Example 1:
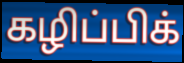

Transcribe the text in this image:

கழிப்பிக்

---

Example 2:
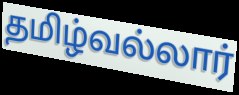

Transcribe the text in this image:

தமிழ்வல்லார்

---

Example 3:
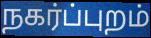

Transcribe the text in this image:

நகர்ப்புறம்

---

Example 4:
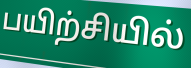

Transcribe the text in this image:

பயிற்சியில்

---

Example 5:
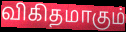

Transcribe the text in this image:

விகிதமாகும்